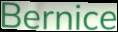
Bernice